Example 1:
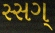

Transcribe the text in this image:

સ્સગ્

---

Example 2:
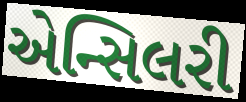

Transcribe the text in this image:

એન્સિલરી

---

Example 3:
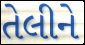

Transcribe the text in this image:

તેલીને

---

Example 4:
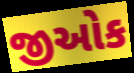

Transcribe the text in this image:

જીઓક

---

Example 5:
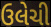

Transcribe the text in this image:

ઉલેચી